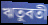
ঋতুবতী